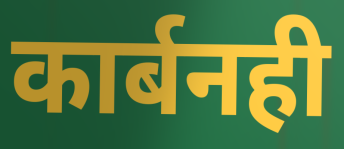
कार्बनही